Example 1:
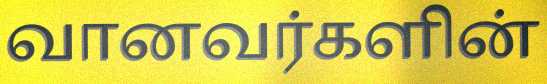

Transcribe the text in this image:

வானவர்களின்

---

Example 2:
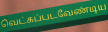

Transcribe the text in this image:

வெட்கப்படவேண்டிய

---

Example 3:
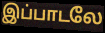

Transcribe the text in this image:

இப்பாடலே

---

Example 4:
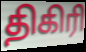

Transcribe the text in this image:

திகிரி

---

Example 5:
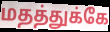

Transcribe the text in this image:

மதத்துக்கே